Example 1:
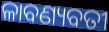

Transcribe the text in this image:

ଳାବଣ୍ୟବତୀ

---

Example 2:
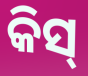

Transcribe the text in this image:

କିସ୍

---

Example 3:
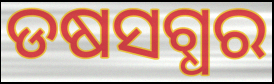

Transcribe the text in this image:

ଡଷସଗ୍ଧର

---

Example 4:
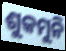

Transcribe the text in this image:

ଶୁକମୁନି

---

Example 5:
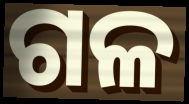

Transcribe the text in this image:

ଗଳ